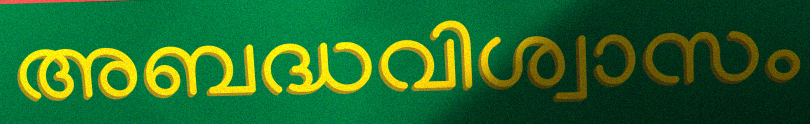
അബദ്ധവിശ്വാസം